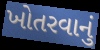
ખોતરવાનું